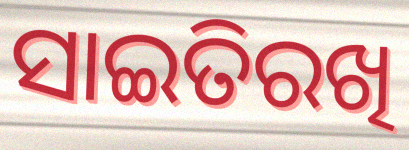
ସାଇତିରଖି